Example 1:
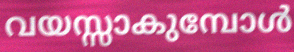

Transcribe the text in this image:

വയസ്സാകുമ്പോൾ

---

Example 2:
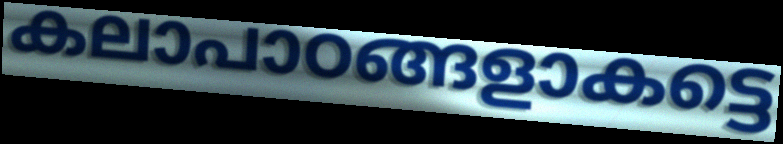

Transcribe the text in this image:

കലാപാഠങ്ങളാകട്ടെ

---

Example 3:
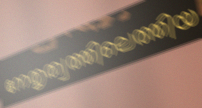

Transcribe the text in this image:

നേതൃത്വത്തിലെത്തിയ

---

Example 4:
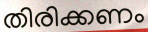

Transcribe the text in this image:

തിരിക്കണം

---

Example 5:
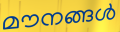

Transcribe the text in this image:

മൗനങ്ങൾ